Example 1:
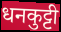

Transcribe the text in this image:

धनकुट्टी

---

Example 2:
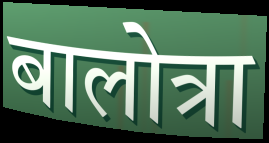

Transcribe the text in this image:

बालोत्रा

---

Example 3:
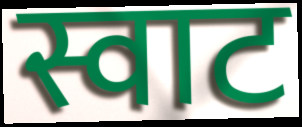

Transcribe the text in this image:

स्वाट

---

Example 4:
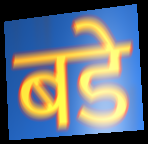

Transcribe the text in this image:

बडे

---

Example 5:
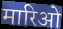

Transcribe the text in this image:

मारिओ